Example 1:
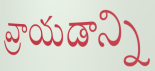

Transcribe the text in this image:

వ్రాయడాన్ని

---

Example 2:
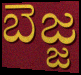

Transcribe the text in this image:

బెజ్జ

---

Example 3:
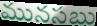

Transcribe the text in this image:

మునసబు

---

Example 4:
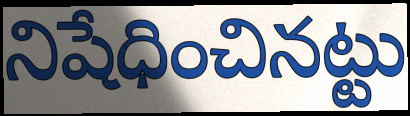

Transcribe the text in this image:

నిషేధించినట్టు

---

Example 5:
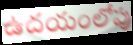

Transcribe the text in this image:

ఉదయంలోపు